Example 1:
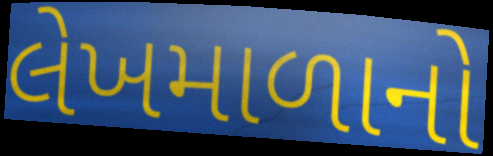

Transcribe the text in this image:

લેખમાળાનો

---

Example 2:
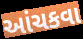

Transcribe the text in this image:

આંચકવા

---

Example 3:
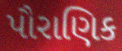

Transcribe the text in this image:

પૌરાણિક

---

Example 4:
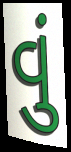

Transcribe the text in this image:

વું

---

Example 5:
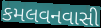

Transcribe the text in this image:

કમલવનવાસી